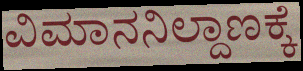
ವಿಮಾನನಿಲ್ದಾಣಕ್ಕೆ